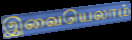
இவையெலாம்